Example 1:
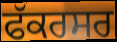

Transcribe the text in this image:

ਫੱਕਰਸਰ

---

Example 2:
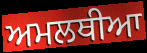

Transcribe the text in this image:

ਅਮਲਥੀਆ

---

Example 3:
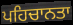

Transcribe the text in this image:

ਪਹਿਚਾਨਤਾ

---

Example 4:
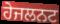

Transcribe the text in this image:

ਹੇਜਲਨਟ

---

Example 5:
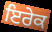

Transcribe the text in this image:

ਇਰੇਕ